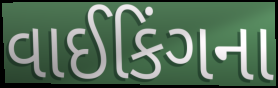
વાઈકિંગના